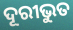
ଦୂରୀଭୁତ